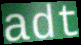
adt